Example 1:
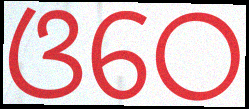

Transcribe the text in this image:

ଓଠେ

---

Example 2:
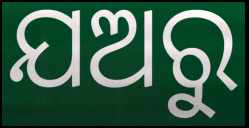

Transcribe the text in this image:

ଯଅରୁ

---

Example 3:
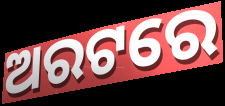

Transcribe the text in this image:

ଅରଟରେ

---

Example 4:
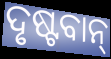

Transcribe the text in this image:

ଦୃଷ୍ଟବାନ୍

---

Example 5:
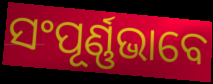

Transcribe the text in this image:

ସଂପୂର୍ଣ୍ଣଭାବେ